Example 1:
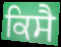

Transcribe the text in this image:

ਕਿਸੈ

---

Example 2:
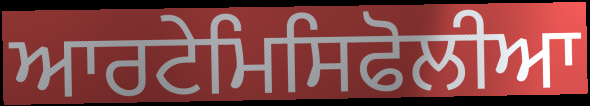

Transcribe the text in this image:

ਆਰਟੇਮਿਸਿਫੋਲੀਆ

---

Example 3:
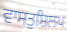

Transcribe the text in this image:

ਵਾਸਤੁਸ਼ਿਲਪ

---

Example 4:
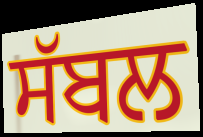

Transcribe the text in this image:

ਸੱਬਲ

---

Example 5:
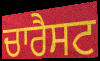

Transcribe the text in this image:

ਚਾਰੈਸਟ